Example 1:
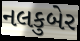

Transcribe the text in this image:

નલકુબેર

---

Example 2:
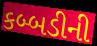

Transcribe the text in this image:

કબ્બડીની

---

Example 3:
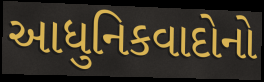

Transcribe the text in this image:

આધુનિકવાદોનો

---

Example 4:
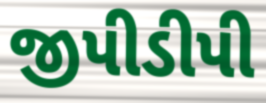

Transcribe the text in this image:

જીપીડીપી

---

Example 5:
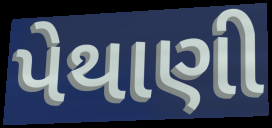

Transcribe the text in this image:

પેથાણી